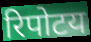
रिपोटय